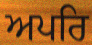
ਅਪਰਿ